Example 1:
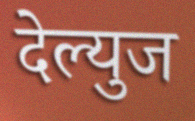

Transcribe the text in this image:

देल्युज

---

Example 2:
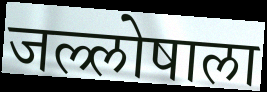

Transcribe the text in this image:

जल्लोषाला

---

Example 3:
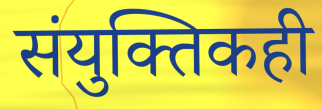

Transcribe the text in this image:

संयुक्तिकही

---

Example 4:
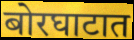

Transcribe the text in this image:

बोरघाटात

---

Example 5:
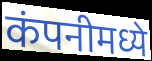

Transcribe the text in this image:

कंपनीमध्ये